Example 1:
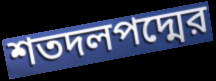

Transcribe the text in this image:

শতদলপদ্মের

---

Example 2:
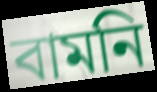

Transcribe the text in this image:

বামনি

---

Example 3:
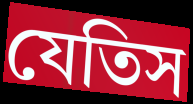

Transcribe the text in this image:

যেতিস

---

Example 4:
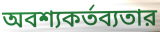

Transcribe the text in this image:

অবশ্যকর্তব্যতার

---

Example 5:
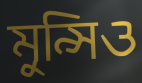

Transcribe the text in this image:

মুন্সিও